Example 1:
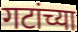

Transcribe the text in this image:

गटांच्या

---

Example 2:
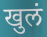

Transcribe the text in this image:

खुलं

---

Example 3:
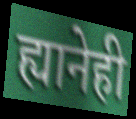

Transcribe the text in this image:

ह्यानेही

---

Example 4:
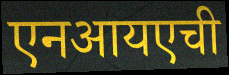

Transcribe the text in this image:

एनआयएची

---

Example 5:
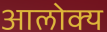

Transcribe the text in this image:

आलोक्य